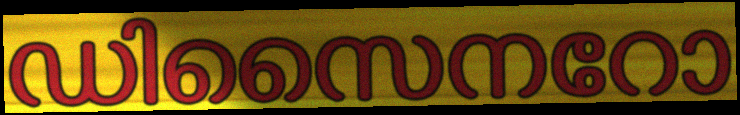
ഡിസൈനറോ